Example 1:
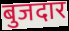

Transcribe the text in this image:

बुजदार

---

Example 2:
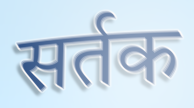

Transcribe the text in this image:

सर्तक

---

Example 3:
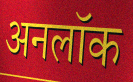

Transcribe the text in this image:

अनलॉक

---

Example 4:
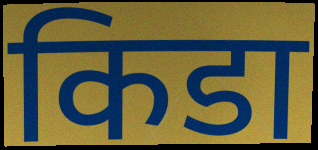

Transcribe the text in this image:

किडा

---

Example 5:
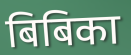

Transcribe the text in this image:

बिबिका